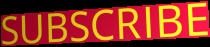
SUBSCRIBE